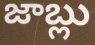
జాబ్లు